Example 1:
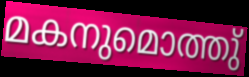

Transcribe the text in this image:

മകനുമൊത്തു്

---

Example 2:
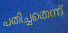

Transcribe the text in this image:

പതിച്ചതെന്ന്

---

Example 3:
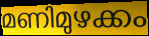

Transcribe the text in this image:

മണിമുഴക്കം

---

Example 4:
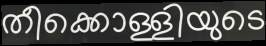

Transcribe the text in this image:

തീക്കൊള്ളിയുടെ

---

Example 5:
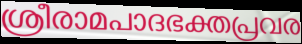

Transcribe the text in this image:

ശ്രീരാമപാദഭക്തപ്രവര